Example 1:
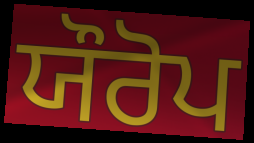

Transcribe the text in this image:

ਯੌਰੋਪ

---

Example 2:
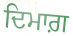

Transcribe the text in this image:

ਦਿਮਾਗ਼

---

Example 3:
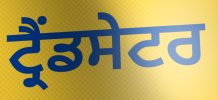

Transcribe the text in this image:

ਟ੍ਰੈਂਡਸੇਟਰ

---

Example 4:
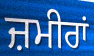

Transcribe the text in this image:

ਜ਼ਮੀਰਾਂ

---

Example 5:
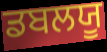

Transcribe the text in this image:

ਡਬਲਯੂ